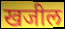
खजील